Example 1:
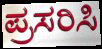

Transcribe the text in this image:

ಪ್ರಸರಿಸಿ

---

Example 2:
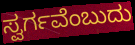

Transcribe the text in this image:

ಸ್ವರ್ಗವೆಂಬುದು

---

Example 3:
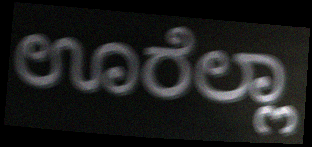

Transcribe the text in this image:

ಊರೆಲ್ಲಾ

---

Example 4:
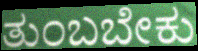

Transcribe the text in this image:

ತುಂಬಬೇಕು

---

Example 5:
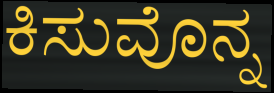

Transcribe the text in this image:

ಕಿಸುವೊನ್ನ